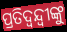
ପ୍ରତିଦ୍ଵନ୍ଦ୍ୱୀଙ୍କୁ